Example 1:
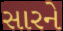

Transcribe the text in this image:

સારને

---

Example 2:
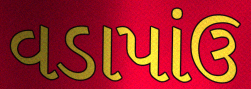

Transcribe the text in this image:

વડાપાંઉ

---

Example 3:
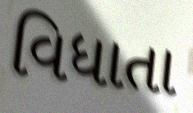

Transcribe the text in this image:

વિધાતા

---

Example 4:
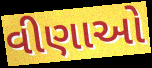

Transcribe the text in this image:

વીણાઓ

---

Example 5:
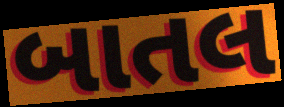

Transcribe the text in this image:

બાતલ